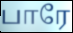
பாரே